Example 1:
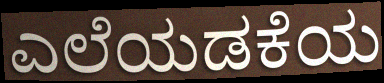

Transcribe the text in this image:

ಎಲೆಯಡಕೆಯ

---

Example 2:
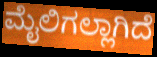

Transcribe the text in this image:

ಮೈಲಿಗಲ್ಲಾಗಿದೆ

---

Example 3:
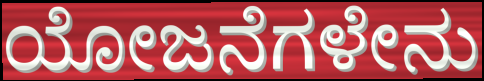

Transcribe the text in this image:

ಯೋಜನೆಗಳೇನು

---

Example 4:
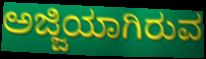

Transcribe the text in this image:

ಅಜ್ಜಿಯಾಗಿರುವ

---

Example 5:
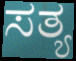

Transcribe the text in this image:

ಸತ್ಯ